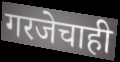
गरजेचाही